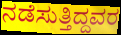
ನಡೆಸುತ್ತಿದ್ದವರ